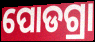
ପୋଡଗ୍ରା